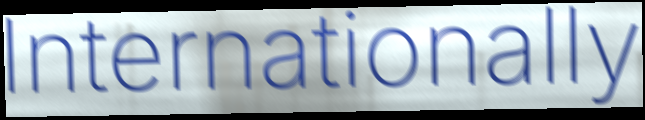
Internationally